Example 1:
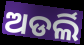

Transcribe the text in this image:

ଅଡର୍ଲି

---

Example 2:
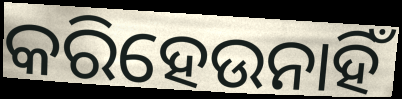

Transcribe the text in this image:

କରିହେଉନାହିଁ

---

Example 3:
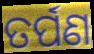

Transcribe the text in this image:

ତର୍ପଣ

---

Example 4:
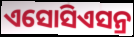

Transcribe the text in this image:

ଏସୋସିଏସନ୍ର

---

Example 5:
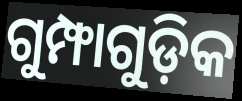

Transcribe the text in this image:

ଗୁମ୍ଫାଗୁଡ଼ିକ